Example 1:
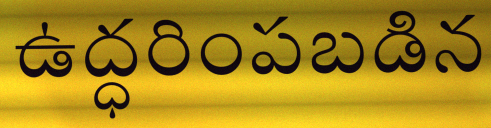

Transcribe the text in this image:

ఉద్ధరింపబడిన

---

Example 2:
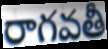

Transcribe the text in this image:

రాగవతీ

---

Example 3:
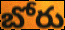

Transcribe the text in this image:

బోరు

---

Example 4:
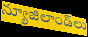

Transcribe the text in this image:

న్యూజిలాండ్‌లు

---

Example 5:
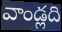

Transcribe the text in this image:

వాండ్లది